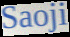
Saoji